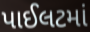
પાઈલટમાં